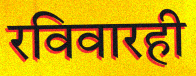
रविवारही